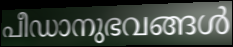
പീഡാനുഭവങ്ങൾ